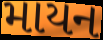
માયન